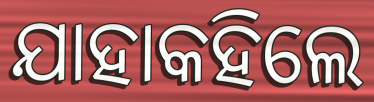
ଯାହାକହିଲେ